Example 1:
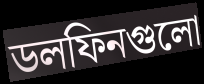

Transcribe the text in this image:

ডলফিনগুলো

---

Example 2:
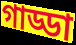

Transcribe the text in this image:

গাড্ডা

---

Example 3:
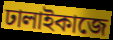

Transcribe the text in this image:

ঢালাইকাজে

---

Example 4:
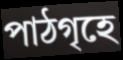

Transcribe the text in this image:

পাঠগৃহে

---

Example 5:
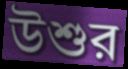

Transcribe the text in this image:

উশুর